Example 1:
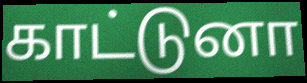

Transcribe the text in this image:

காட்டுனா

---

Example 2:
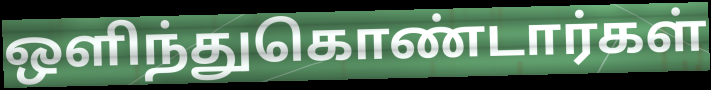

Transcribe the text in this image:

ஒளிந்துகொண்டார்கள்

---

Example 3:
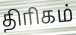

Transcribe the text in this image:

திரிகம்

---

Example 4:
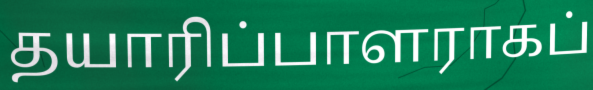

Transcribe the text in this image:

தயாரிப்பாளராகப்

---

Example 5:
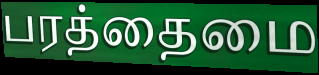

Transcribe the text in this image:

பரத்தைமை